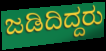
ಜಡಿದಿದ್ದರು